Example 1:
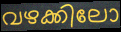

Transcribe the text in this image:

വഴക്കിലോ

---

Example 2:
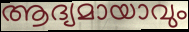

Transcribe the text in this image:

ആദ്യമായാവും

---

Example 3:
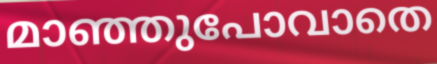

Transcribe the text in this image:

മാഞ്ഞുപോവാതെ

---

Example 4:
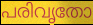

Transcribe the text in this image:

പരിവൃതോ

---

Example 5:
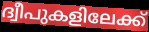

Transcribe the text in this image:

ദ്വീപുകളിലേക്ക്